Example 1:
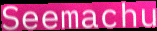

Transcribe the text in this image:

Seemachu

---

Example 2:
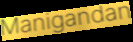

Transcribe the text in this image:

Manigandan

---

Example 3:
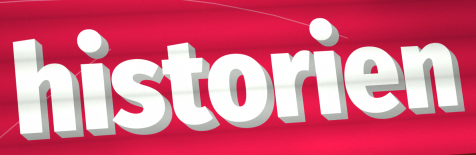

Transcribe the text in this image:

historien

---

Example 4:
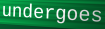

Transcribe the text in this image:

undergoes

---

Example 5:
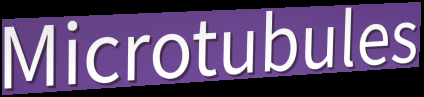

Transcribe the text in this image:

Microtubules